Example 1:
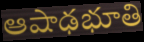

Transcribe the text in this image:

ఆషాఢభూతి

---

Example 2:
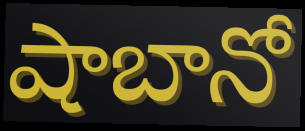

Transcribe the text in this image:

షాబానో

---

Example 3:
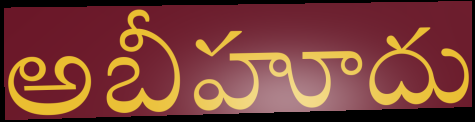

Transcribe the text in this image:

అబీహూదు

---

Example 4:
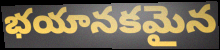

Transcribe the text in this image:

భయానకమైన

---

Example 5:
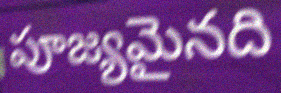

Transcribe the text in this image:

పూజ్యమైనది